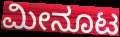
ಮೀನೂಟ